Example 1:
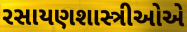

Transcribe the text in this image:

રસાયણશાસ્ત્રીઓએ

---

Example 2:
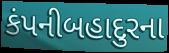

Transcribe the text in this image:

કંપનીબહાદુરના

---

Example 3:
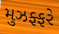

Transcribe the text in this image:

મુઝફ્ફરે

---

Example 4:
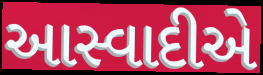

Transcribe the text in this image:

આસ્વાદીએ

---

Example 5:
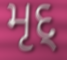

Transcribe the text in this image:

મૃદ્